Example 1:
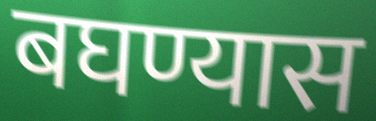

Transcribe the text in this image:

बघण्यास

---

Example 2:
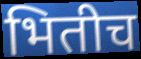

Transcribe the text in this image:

भितीच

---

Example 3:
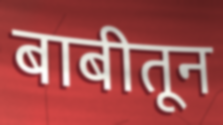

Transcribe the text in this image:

बाबीतून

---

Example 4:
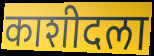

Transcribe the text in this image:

काशीदला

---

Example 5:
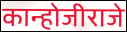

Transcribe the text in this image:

कान्होजीराजे